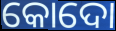
କୋଦୋ